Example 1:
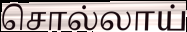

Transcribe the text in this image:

சொல்லாய்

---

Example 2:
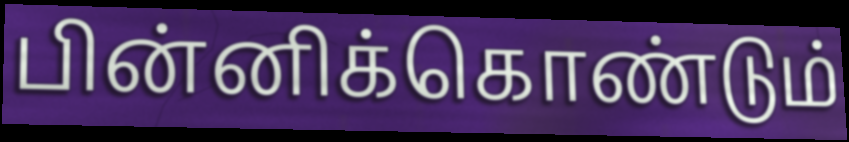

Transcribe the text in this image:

பின்னிக்கொண்டும்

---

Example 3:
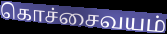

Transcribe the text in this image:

கொச்சைவயம்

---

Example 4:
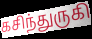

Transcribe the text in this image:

கசிந்துருகி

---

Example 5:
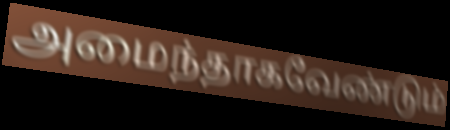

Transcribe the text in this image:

அமைந்தாகவேண்டும்